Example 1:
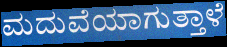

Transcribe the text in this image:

ಮದುವೆಯಾಗುತ್ತಾಳೆ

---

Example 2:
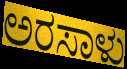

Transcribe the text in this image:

ಅರಸಾಳು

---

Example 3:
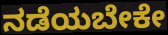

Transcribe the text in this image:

ನಡೆಯಬೇಕೇ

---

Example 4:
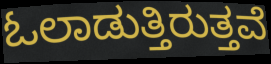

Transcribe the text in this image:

ಓಲಾಡುತ್ತಿರುತ್ತವೆ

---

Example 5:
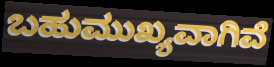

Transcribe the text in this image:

ಬಹುಮುಖ್ಯವಾಗಿವೆ